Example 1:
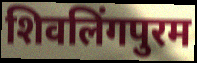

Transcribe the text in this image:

शिवलिंगपुरम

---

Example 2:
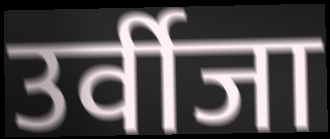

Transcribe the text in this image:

उर्वीजा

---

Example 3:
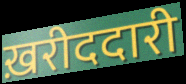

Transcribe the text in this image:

ख़रीददारी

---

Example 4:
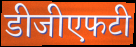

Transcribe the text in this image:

डीजीएफटी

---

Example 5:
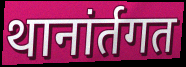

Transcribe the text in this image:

थानांर्तगत